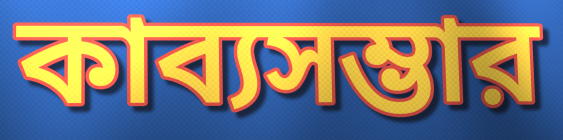
কাব্যসম্ভার